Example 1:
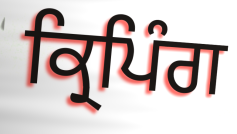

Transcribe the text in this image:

ਕ੍ਰਿਪਿੰਗ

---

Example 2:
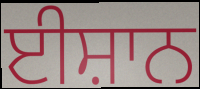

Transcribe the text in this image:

ਈਸ਼ਾਨ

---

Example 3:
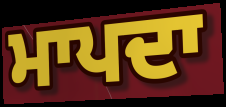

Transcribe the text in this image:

ਮਾਪਦਾ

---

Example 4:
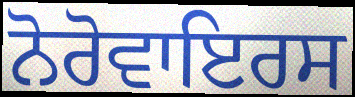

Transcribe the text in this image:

ਨੋਰੋਵਾਇਰਸ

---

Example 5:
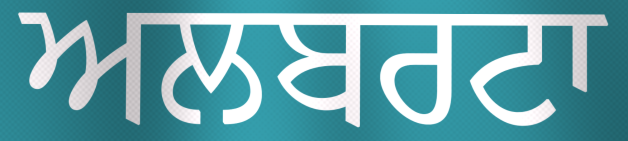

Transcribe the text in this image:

ਅਲਬਰਟਾ